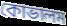
কোভালম